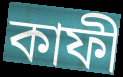
কাফী